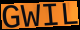
GWIL